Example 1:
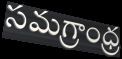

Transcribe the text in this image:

సమగ్రాంధ్ర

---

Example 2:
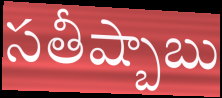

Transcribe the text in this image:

సతీష్బాబు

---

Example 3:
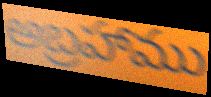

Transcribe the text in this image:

అబ్రహాము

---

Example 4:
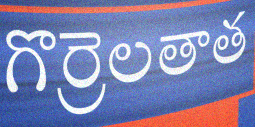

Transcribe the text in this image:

గొర్రెలతాత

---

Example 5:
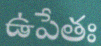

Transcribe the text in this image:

ఉపేతః